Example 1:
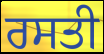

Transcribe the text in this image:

ਰਸਤੀ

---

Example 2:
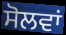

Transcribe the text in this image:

ਸੋਲਵਾਂ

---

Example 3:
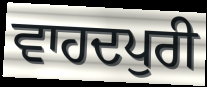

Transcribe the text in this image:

ਵਾਹਦਪੁਰੀ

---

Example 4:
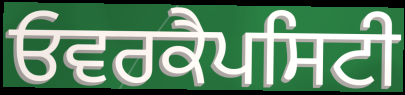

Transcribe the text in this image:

ਓਵਰਕੈਪਸਿਟੀ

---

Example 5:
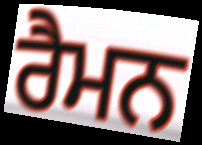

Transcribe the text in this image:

ਰੈਮਨ